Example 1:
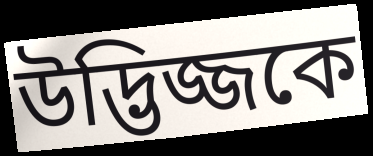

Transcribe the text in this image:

উদ্ভিজ্জকে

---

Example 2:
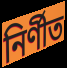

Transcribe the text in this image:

নির্ণীত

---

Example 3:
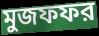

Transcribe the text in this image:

মুজফফর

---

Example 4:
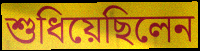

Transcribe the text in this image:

শুধিয়েছিলেন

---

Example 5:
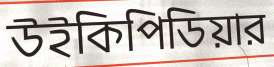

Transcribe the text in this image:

উইকিপিডিয়ার